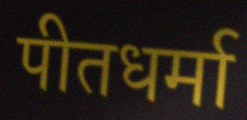
पीतधर्मा